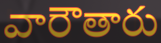
వారౌతారు